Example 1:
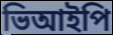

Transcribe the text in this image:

ভিআইপি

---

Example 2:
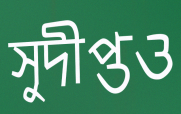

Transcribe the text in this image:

সুদীপ্তও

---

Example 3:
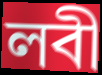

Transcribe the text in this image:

লবী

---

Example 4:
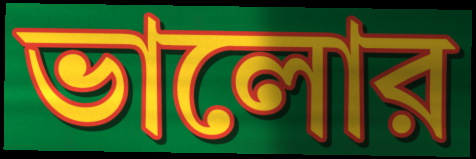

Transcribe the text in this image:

ভালোর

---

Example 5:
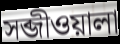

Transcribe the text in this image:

সব্জীওয়ালা